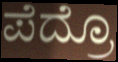
ಪೆದ್ರೊ